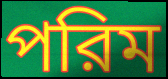
পরিম